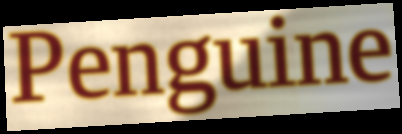
Penguine